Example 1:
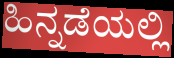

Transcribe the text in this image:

ಹಿನ್ನಡೆಯಲ್ಲಿ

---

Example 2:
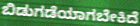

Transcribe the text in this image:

ಬಿಡುಗಡೆಯಾಗಬೇಕಿದೆ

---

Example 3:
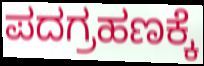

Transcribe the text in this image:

ಪದಗ್ರಹಣಕ್ಕೆ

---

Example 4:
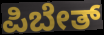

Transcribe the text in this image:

ಪಿಬೇತ್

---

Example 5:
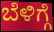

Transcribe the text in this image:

ಬೆಳಿಗ್ಗೆ